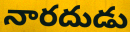
నారదుడు